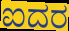
ಐದರ